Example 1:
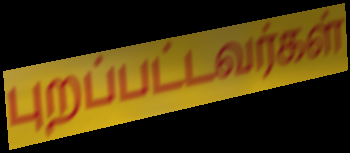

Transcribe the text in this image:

புறப்பட்டவர்கள்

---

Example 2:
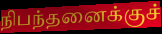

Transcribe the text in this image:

நிபந்தனைக்குச்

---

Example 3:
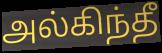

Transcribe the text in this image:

அல்கிந்தீ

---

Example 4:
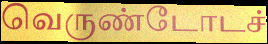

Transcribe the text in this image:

வெருண்டோடச்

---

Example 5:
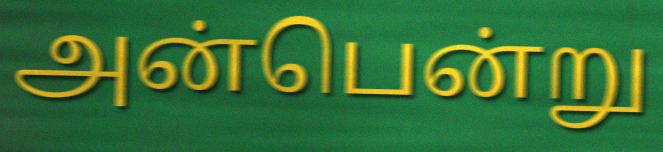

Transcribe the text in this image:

அன்பென்று